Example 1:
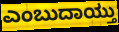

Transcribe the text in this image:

ಎಂಬುದಾಯ್ತು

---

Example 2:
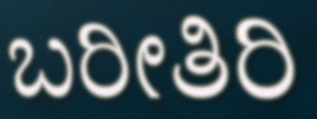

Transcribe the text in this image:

ಬರೀತಿರಿ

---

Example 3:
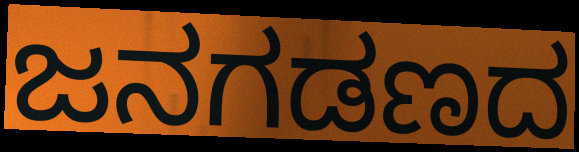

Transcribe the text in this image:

ಜನಗಡಣದ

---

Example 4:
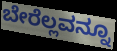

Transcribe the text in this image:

ಬೇರೆಲ್ಲವನ್ನೂ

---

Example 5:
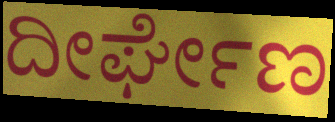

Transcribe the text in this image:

ದೀರ್ಘೇಣ